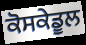
ਕੋਸਕੇਡੂਲ